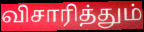
விசாரித்தும்